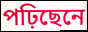
পঢ়িছেনে